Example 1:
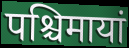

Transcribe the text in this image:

पश्चिमायां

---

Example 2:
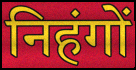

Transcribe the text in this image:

निहंगों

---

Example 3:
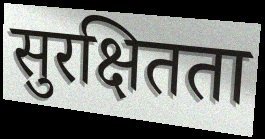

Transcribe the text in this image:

सुरक्षितता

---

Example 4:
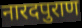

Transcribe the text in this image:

नारदपुराण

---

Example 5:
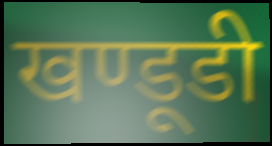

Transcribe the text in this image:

खण्डूडी